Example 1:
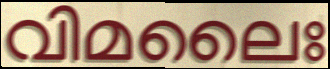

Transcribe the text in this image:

വിമലൈഃ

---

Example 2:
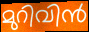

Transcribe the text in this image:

മുറിവിൻ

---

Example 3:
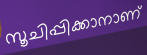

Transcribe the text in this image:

സൂചിപ്പിക്കാനാണ്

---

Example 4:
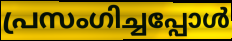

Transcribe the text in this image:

പ്രസംഗിച്ചപ്പോൾ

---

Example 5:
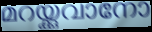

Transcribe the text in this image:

മറയ്ക്കുവാനോ